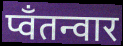
प्वॅंतन्वार